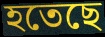
হতেছে